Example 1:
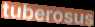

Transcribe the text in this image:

tuberosus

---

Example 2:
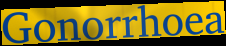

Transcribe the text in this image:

Gonorrhoea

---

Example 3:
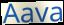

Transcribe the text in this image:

Aava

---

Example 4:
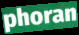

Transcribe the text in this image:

phoran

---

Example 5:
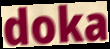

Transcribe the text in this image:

doka